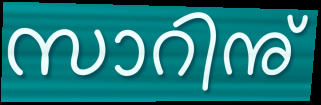
സാറിനു്